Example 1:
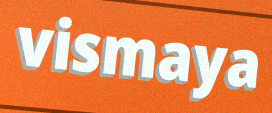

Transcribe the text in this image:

vismaya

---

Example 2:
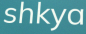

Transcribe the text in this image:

shkya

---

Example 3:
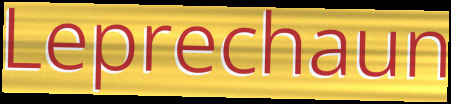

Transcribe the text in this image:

Leprechaun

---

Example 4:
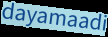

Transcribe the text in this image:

dayamaadi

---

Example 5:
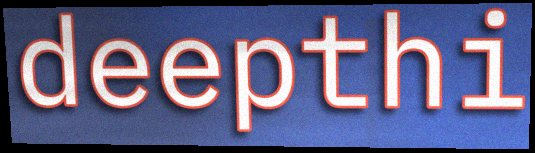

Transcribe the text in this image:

deepthi